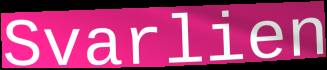
Svarlien